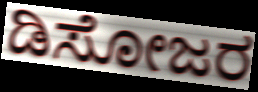
ಡಿಸೋಜರ